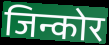
जिन्कोर